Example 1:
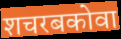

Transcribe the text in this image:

शचरबकोवा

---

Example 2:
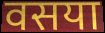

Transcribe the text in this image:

वसया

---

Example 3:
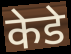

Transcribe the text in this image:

केडे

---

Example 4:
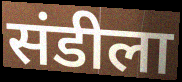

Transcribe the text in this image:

संडीला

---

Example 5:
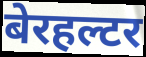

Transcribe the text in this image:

बेरहल्टर